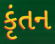
કૃંતન